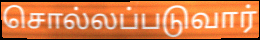
சொல்லப்படுவார்